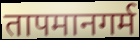
तापमानगर्म